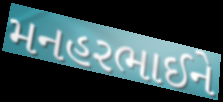
મનહરભાઈને